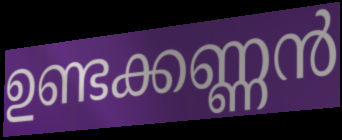
ഉണ്ടക്കണ്ണൻ